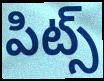
పిట్స్